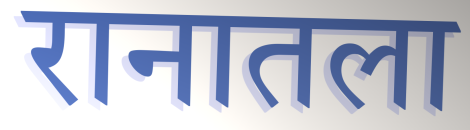
रानातला